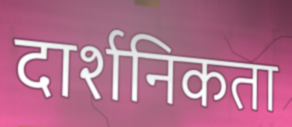
दार्शनिकता